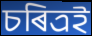
চৰিত্ৰই